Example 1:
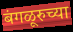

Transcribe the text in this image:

बंगळूरुच्या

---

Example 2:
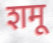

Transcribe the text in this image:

शमू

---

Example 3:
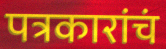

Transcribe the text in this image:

पत्रकारांचं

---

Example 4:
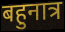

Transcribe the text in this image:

बहुनात्र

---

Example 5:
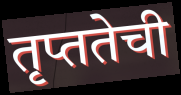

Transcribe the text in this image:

तृप्ततेची